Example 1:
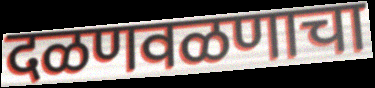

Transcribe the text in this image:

दळणवळणाचा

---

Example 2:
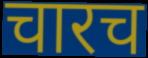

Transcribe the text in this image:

चारच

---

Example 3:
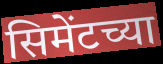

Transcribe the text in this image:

सिमेंटच्या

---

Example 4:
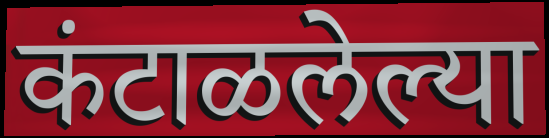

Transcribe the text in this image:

कंटाळलेल्या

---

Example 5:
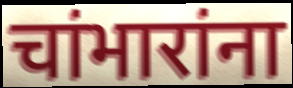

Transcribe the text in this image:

चांभारांना